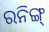
ରନିଙ୍ଗ୍